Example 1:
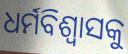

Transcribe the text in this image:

ଧର୍ମବିଶ୍ଵାସକୁ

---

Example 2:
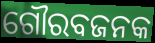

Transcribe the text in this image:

ଗୌରବଜନକ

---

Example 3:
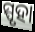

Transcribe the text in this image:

ସ୍ପୃହା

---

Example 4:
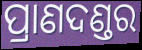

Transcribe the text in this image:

ପ୍ରାଣଦଣ୍ଡର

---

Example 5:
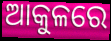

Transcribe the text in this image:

ଆକୁଳରେ